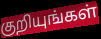
குறியுங்கள்